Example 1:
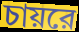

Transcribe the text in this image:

চায়রে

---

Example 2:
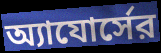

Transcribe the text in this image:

অ্যাযোর্সের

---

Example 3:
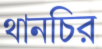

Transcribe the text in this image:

থানচির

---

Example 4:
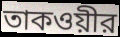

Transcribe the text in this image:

তাকওয়ীর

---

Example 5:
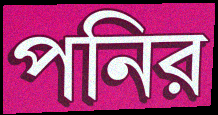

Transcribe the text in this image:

পনির